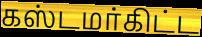
கஸ்டமர்கிட்ட